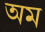
অম